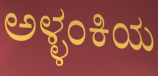
ಅಳ್ಳಂಕಿಯ